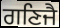
ਗਣਿਜੈ